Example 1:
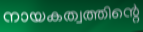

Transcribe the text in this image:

നായകത്വത്തിന്റെ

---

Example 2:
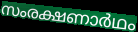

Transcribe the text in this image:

സംരക്ഷണാർഥം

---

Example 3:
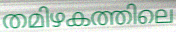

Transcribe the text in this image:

തമിഴകത്തിലെ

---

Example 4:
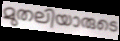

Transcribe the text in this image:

മുതലിയാരുടെ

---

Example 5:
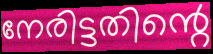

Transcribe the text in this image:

നേരിട്ടതിന്റെ